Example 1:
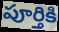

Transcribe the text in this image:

పూర్తికి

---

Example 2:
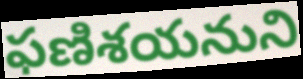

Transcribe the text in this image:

ఫణిశయనుని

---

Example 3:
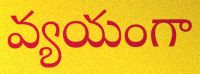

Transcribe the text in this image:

వ్యయంగా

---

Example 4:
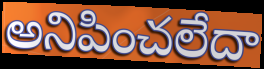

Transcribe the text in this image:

అనిపించలేదా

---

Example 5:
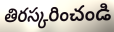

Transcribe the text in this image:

తిరస్కరించండి